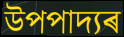
উপপাদ্যৰ